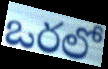
ఒరలో